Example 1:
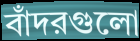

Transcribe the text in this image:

বাঁদরগুলো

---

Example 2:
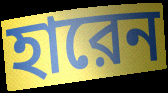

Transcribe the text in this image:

হারেন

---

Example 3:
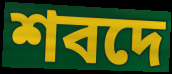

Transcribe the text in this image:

শবদে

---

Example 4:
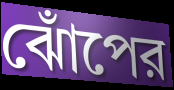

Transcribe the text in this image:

ঝোঁপের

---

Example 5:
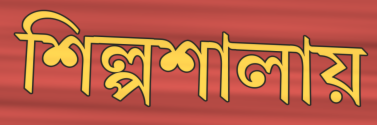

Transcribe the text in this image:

শিল্পশালায়